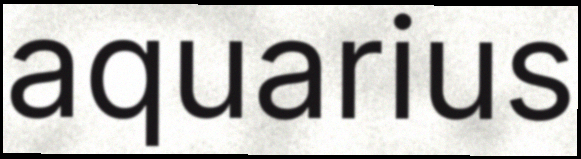
aquarius